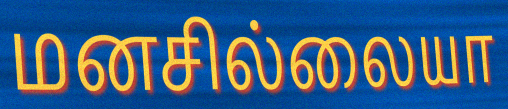
மனசில்லையா